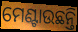
ମେଣ୍ଟାଉଛନ୍ତି